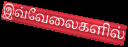
இவ்வேலைகளில்